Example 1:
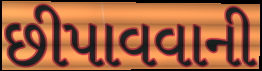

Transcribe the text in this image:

છીપાવવાની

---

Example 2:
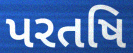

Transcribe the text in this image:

પરતષિ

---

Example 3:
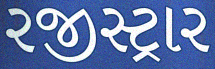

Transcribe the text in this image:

રજીસ્ટ્રાર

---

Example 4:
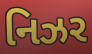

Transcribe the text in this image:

નિઝર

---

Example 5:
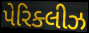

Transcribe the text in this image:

પેરિક્લીઝ